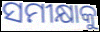
ସମୀକ୍ଷାକୁ